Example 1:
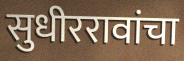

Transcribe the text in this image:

सुधीररावांचा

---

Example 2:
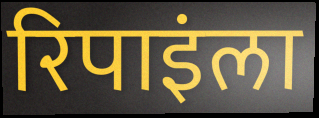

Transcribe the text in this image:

रिपाइंला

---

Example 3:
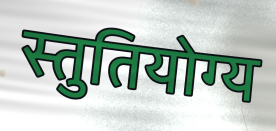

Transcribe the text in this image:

स्तुतियोग्य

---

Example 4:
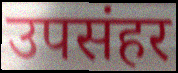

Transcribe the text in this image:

उपसंहर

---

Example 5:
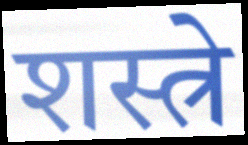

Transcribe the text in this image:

शस्त्रे